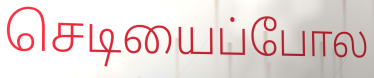
செடியைப்போல